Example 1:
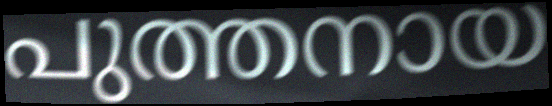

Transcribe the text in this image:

പുത്തനായ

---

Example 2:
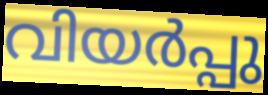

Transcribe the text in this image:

വിയർപ്പു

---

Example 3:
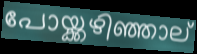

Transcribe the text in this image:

പോയ്ക്കഴിഞ്ഞാല്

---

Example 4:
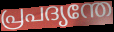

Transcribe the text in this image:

പ്രപദ്യന്തേ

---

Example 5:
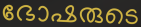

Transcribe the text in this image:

ഭോഷരുടെ